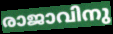
രാജാവിനു